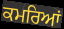
ਕਮਰਿਆਂ